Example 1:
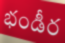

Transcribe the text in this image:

భండీర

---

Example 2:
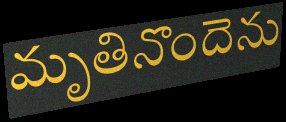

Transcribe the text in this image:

మృతినొందెను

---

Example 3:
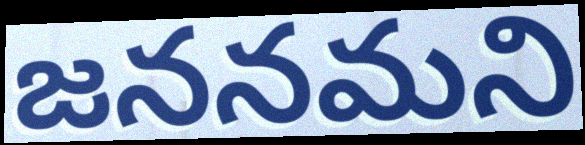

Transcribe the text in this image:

జననమని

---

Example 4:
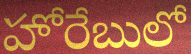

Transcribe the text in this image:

హోరేబులో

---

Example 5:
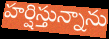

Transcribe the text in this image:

హర్షిస్తున్నాను